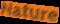
Nature